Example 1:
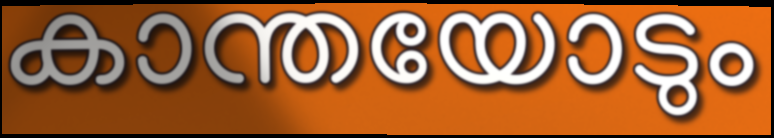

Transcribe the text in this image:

കാന്തയോടും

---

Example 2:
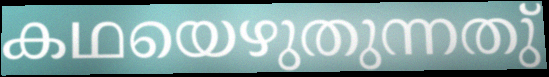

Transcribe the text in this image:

കഥയെഴുതുന്നതു്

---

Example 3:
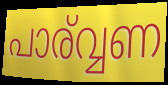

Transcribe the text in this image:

പാര്വ്വണ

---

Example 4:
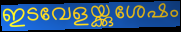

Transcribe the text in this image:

ഇടവേളയ്ക്കുശേഷം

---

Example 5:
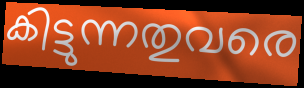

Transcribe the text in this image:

കിട്ടുന്നതുവരെ